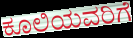
ಕೂಲಿಯವರಿಗೆ